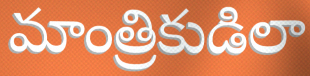
మాంత్రికుడిలా